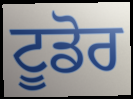
ਟੂਡੋਰ